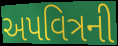
અપવિત્રની